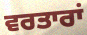
ਵਰਤਾਰਾਂ